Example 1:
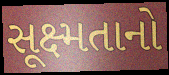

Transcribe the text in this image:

સૂક્ષ્મતાનો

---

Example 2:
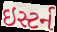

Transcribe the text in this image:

ઇસ્ટર્ન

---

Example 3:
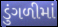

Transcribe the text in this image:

ડુંગળીમાં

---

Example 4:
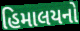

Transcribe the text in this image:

હિમાલયનો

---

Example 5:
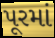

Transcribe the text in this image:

પૂરમાં